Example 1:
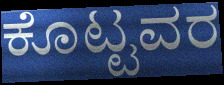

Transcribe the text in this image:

ಕೊಟ್ಟವರ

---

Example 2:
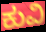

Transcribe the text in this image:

ಕುವಿ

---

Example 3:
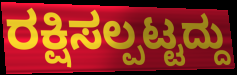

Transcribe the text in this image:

ರಕ್ಷಿಸಲ್ಪಟ್ಟದ್ದು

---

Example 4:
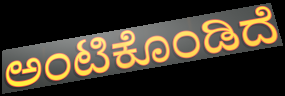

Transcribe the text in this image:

ಅಂಟಿಕೊಂಡಿದೆ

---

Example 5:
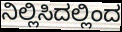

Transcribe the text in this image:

ನಿಲ್ಲಿಸಿದಲ್ಲಿಂದ